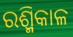
ରଶ୍ମିକାଳ